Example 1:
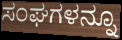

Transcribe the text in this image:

ಸಂಘಗಳನ್ನೂ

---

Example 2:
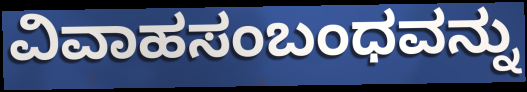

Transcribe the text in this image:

ವಿವಾಹಸಂಬಂಧವನ್ನು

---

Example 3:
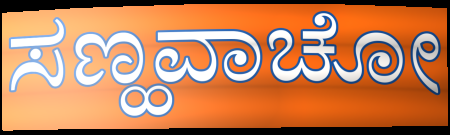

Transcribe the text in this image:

ಸಣ್ಹವಾಚೋ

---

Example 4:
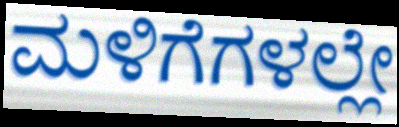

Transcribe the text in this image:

ಮಳಿಗೆಗಳಲ್ಲೇ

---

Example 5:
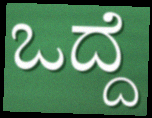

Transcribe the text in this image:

ಒದ್ದೆ